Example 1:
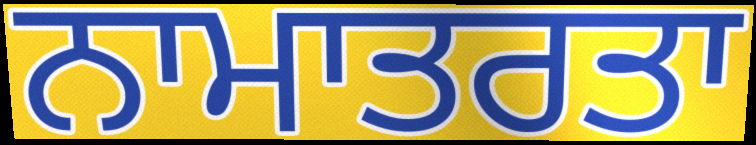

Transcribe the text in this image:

ਨਾਮਾਤਰਤਾ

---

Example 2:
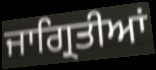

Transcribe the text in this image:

ਜਾਗ੍ਰਿਤੀਆਂ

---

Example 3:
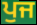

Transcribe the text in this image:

ਪੁਜ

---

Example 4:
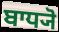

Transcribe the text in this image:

ਬਾਧ੍ਯੋ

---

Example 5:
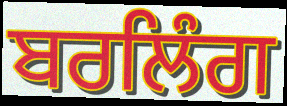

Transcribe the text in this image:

ਬਰਲਿੰਗ